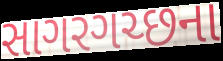
સાગરગચ્છના